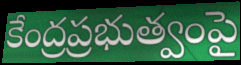
కేంద్రప్రభుత్వంపై